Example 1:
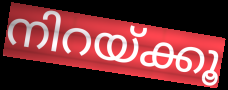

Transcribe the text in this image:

നിറയ്ക്കൂ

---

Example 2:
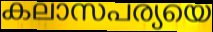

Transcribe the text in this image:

കലാസപര്യയെ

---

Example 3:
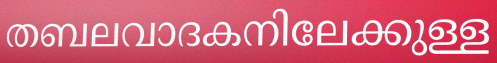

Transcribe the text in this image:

തബലവാദകനിലേക്കുള്ള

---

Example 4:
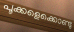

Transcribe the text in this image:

പൂക്കളെക്കൊണ്ടു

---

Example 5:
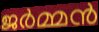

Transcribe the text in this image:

ജർമ്മൻ